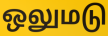
ஒலுமடு